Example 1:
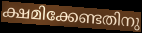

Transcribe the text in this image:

ക്ഷമിക്കേണ്ടതിനു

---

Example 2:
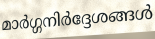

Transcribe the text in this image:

മാർഗ്ഗനിർദ്ദേശങ്ങൾ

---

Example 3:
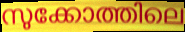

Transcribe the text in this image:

സുക്കോത്തിലെ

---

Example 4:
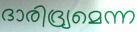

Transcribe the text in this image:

ദാരിദ്ര്യമെന്ന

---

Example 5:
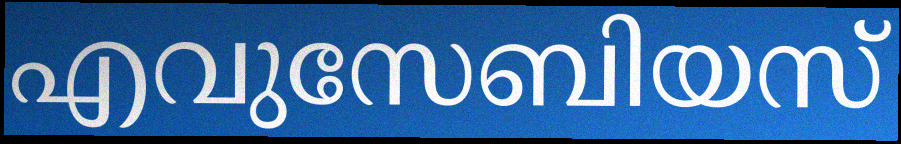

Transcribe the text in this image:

എവുസേബിയസ്